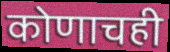
कोणाचही